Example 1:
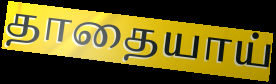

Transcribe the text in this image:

தாதையாய்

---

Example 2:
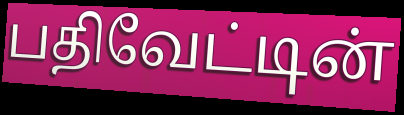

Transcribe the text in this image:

பதிவேட்டின்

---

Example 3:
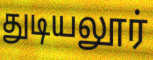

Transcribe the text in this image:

துடியலூர்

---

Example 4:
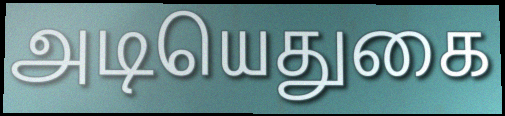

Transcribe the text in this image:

அடியெதுகை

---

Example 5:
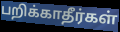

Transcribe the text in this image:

பறிக்காதீர்கள்